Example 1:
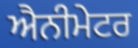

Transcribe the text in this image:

ਐਨੀਮੇਟਰ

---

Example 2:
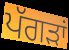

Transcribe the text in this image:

ਪੱਗੜਾਂ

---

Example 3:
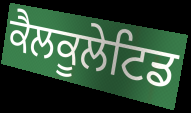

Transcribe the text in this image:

ਕੈਲਕੂਲੇਟਿਡ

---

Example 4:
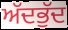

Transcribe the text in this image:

ਅੱਦਭੁੱਦ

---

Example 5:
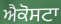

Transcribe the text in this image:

ਐਕੋਸਟਾ